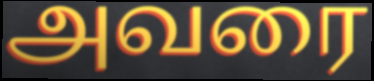
அவரை